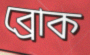
ব্রোক